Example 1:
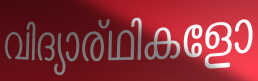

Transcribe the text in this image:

വിദ്യാര്ഥികളോ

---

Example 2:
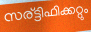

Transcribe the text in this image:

സര്ട്ടിഫിക്കറ്റും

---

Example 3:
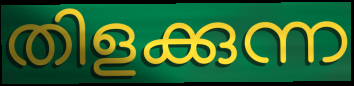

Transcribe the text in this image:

തിളക്കുന്ന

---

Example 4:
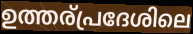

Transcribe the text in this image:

ഉത്തര്പ്രദേശിലെ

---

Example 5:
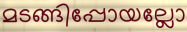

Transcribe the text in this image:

മടങ്ങിപ്പോയല്ലോ